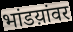
भांडय़ांवर